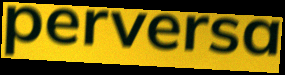
perversa